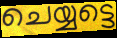
ചെയ്യട്ടെ